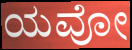
ಯವೋ